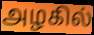
அழகில்